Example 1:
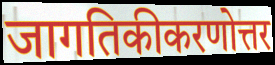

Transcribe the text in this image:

जागतिकीकरणोत्तर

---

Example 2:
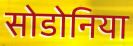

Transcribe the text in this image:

सोडोनिया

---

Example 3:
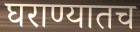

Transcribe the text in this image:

घराण्यातच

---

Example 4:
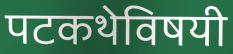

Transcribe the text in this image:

पटकथेविषयी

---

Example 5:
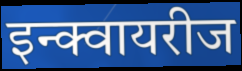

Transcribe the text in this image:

इन्क्वायरीज